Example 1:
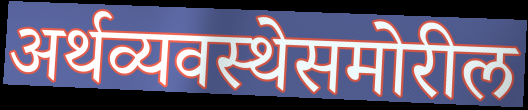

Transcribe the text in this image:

अर्थव्यवस्थेसमोरील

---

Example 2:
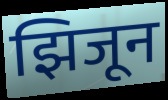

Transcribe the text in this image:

झिजून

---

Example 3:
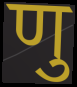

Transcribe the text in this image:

णु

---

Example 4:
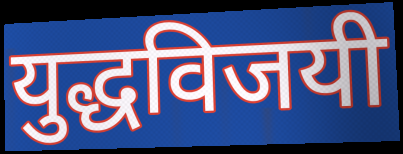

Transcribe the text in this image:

युद्धविजयी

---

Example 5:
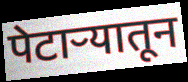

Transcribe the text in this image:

पेटाऱ्यातून